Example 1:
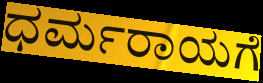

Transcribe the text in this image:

ಧರ್ಮರಾಯಗೆ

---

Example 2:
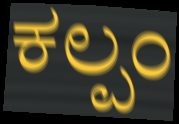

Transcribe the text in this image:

ಕಲ್ಪಂ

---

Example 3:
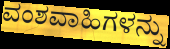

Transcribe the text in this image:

ವಂಶವಾಹಿಗಳನ್ನು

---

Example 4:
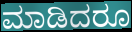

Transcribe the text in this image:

ಮಾಡಿದರೂ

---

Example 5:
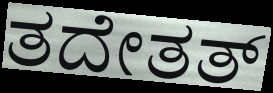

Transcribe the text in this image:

ತದೇತತ್